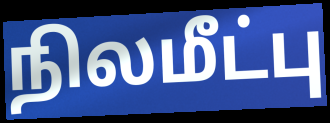
நிலமீட்பு